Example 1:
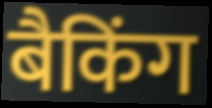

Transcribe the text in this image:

बैकिंग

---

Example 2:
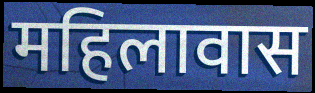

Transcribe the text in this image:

महिलावास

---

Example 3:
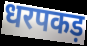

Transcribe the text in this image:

धरपकड़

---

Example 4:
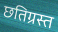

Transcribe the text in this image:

छतिग्रस्त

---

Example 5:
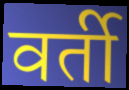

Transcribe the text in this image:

वर्ती